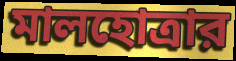
মালহোত্রার